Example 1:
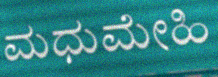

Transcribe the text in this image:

ಮಧುಮೇಹಿ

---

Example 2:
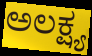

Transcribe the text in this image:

ಅಲಕ್ಷ್ಯ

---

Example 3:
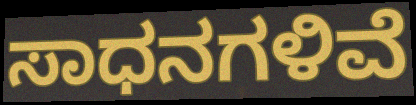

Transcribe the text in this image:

ಸಾಧನಗಳಿವೆ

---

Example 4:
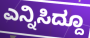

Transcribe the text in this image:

ಎನ್ನಿಸಿದ್ದೂ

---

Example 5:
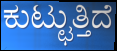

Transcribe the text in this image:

ಕುಟ್ಟುತ್ತಿದೆ